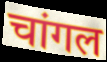
चांगल